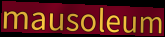
mausoleum